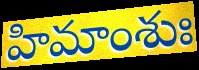
హిమాంశుః